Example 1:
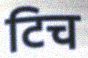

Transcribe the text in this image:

टिच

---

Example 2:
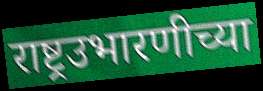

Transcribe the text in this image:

राष्ट्रउभारणीच्या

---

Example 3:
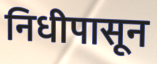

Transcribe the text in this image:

निधीपासून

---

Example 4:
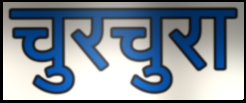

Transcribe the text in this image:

चुरचुरा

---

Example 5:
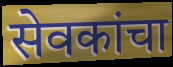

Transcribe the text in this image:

सेवकांचा